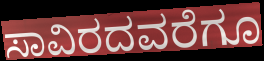
ಸಾವಿರದವರೆಗೂ